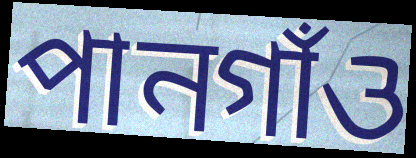
পানগাঁও